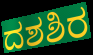
ದಶಶಿರ